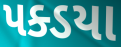
પક્ડયા